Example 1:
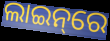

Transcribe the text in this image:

ଲାଇନ୍‌ରେ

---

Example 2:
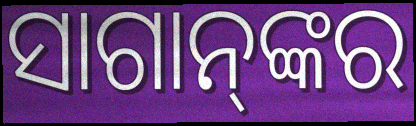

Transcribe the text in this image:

ସାଗାନ୍‌ଙ୍କର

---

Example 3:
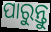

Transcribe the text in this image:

ପାରୁନ୍ତୁ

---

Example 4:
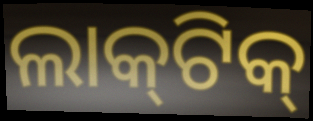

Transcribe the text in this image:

ଲାକ୍‌ଟିକ୍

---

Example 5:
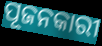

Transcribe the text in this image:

ପୂଜନକାରୀ